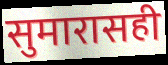
सुमारासही